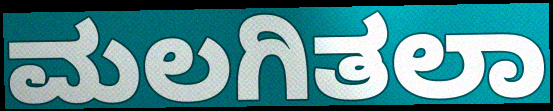
ಮಲಗಿತಲಾ